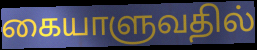
கையாளுவதில்